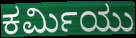
ಕರ್ಮಿಯು